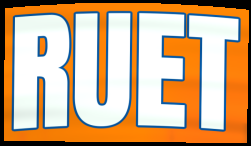
RUET